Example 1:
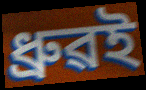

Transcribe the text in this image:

ধ্ৰুৱই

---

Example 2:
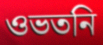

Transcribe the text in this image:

ওভতনি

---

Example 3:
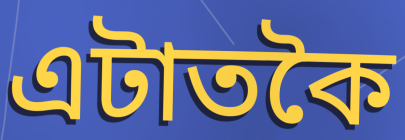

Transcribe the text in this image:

এটাতকৈ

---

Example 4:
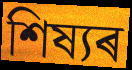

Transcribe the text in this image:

শিষ্যৰ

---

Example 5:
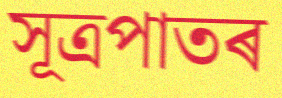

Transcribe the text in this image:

সূত্ৰপাতৰ